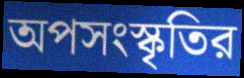
অপসংস্কৃতির